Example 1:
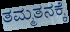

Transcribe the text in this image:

ತಮ್ಮತನಕ್ಕೆ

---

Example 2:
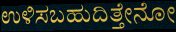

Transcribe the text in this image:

ಉಳಿಸಬಹುದಿತ್ತೇನೋ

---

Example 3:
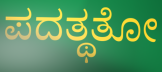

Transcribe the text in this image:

ಪದತ್ಥತೋ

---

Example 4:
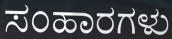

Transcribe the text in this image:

ಸಂಹಾರಗಳು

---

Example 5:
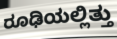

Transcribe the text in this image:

ರೂಢಿಯಲ್ಲಿತ್ತು